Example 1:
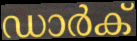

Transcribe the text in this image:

ഡാർക്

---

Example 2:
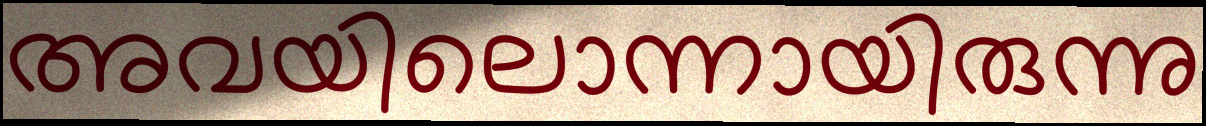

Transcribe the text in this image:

അവയിലൊന്നായിരുന്നു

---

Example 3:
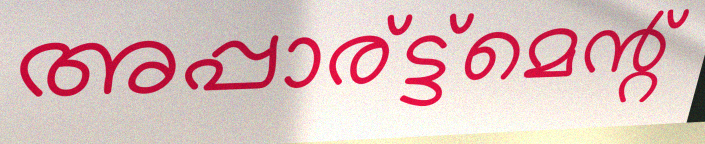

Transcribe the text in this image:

അപ്പാര്ട്ട്മെന്റ്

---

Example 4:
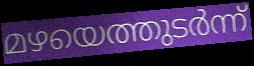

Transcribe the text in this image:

മഴയെത്തുടർന്ന്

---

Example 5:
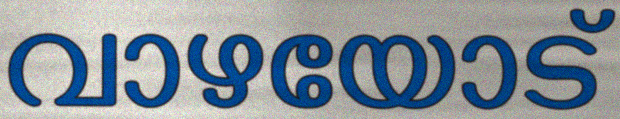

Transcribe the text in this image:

വാഴയോട്